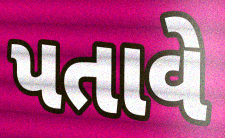
પતાવે